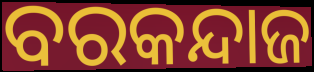
ବରକନ୍ଦାଜ